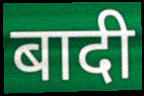
बादी